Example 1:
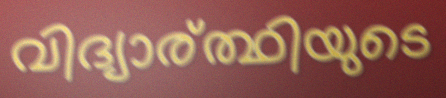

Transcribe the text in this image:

വിദ്യാര്ത്ഥിയുടെ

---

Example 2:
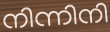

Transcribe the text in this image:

നിന്നിനി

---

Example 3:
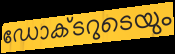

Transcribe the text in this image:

ഡോക്ടറുടെയും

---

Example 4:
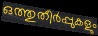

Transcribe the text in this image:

ഒത്തുതീർപ്പുകളും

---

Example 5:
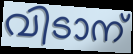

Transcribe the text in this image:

വിടാന്